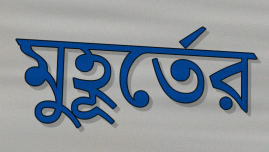
মুহূর্তের